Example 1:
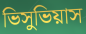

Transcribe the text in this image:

ভিসুভিয়াস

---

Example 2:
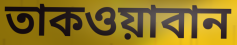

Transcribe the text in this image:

তাকওয়াবান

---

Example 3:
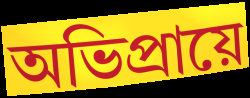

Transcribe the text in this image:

অভিপ্রায়ে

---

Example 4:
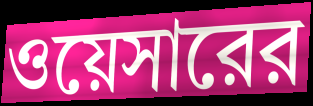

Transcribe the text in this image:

ওয়েসারের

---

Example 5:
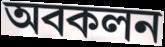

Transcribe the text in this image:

অবকলন